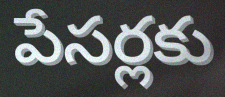
పేసర్లకు